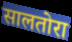
सालतोरा